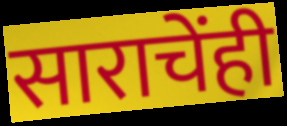
साराचेंही